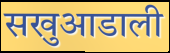
सखुआडाली